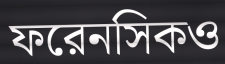
ফরেনসিকও